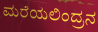
ಮರೆಯಲಿಂದ್ರನ